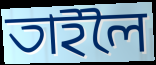
তাইলৈ